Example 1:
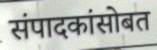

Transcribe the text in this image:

संपादकांसोबत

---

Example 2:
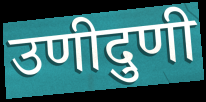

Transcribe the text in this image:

उणीदुणी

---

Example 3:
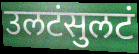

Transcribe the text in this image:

उलटंसुलटं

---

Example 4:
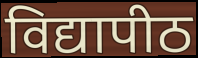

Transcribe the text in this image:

विद्यापीठ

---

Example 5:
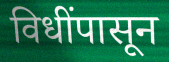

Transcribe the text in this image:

विधींपासून